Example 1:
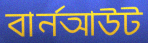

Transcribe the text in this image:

বার্নআউট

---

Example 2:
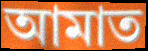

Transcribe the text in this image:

আমাত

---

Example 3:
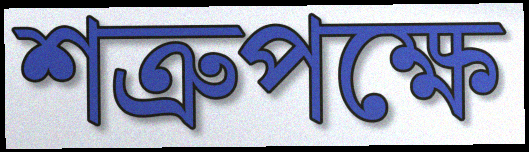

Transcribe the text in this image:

শত্রুপক্ষে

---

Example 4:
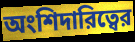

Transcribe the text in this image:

অংশিদারিত্বের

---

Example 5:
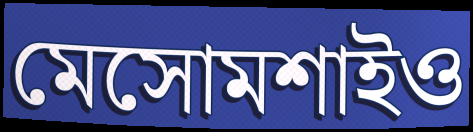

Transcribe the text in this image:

মেসোমশাইও